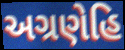
અગ્રણેહિ